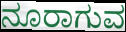
ನೂರಾಗುವ